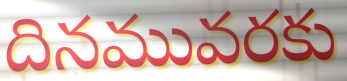
దినమువరకు